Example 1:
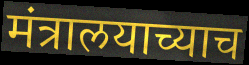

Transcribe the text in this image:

मंत्रालयाच्याच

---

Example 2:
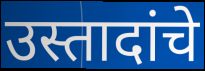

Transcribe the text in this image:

उस्तादांचे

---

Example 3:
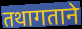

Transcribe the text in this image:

तथागताने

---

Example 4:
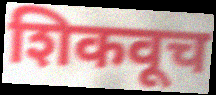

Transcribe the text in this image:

शिकवूच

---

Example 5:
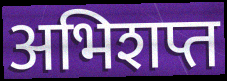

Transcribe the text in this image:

अभिशप्त